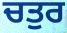
ਚਤੁਰ